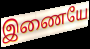
இணையே